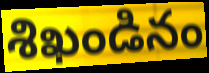
శిఖండినం